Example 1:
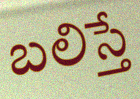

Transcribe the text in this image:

బలిస్తే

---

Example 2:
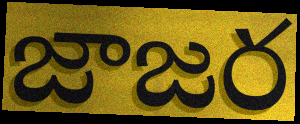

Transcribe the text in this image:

జాజర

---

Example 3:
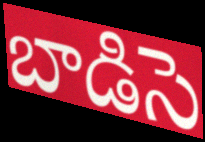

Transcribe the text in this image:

బాడిసె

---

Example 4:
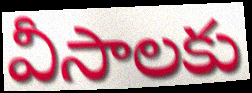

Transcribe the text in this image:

వీసాలకు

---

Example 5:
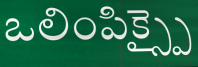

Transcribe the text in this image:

ఒలింపిక్స్పై